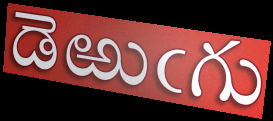
డెఱుఁగు